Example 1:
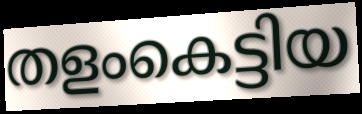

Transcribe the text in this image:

തളംകെട്ടിയ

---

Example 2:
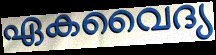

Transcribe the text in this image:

ഏകവൈദ്യ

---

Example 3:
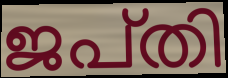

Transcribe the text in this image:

ജപ്‌തി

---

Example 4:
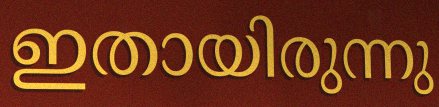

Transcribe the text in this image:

ഇതായിരുന്നു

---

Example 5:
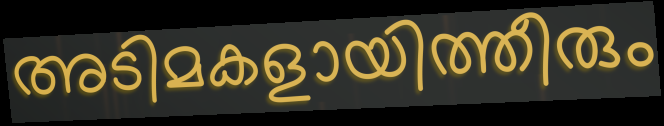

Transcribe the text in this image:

അടിമകളായിത്തീരും